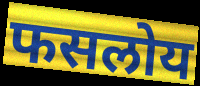
फसलोय